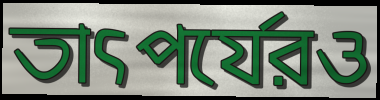
তাৎপর্যেরও